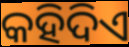
କହିଦିଏ